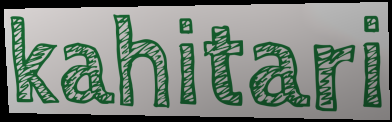
kahitari